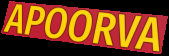
APOORVA